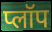
प्लॉप